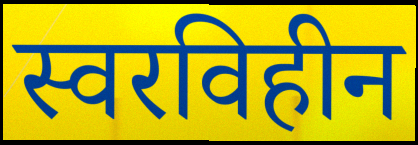
स्वरविहीन